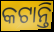
କଟାନ୍ତି